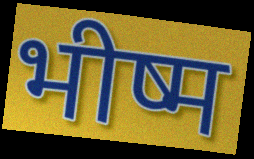
भीष्म